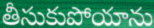
తీసుకుపోయాను